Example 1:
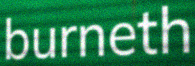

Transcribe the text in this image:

burneth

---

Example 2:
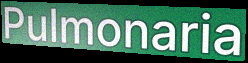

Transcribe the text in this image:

Pulmonaria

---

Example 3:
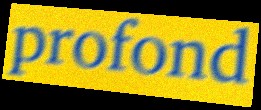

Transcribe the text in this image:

profond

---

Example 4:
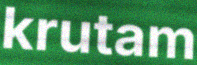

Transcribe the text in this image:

krutam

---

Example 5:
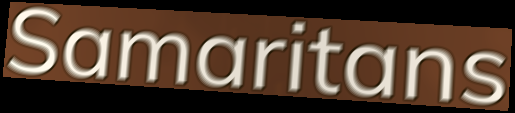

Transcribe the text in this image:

Samaritans